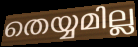
തെയ്യമില്ല